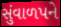
સુંવાળપને